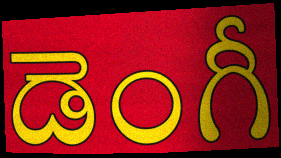
డెంగీ